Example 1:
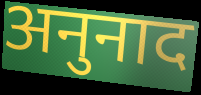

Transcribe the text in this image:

अनुनाद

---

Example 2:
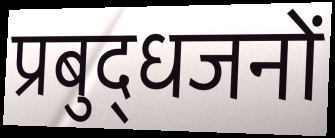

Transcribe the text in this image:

प्रबुद्धजनों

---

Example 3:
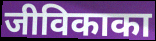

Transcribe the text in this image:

जीविकाका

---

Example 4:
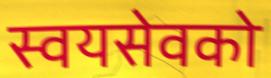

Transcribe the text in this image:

स्वयसेवको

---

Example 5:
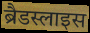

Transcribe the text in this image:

ब्रैडस्लाइस